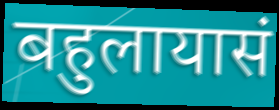
बहुलायासं